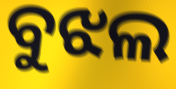
ବୁଝଲ